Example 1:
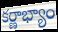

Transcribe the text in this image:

కర్ణాభ్యాం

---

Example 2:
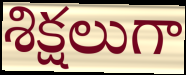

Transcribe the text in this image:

శిక్షలుగా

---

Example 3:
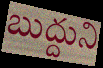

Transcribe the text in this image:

బుద్దుని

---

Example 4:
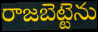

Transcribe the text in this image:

రాజబెట్టెను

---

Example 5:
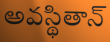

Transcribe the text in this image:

అవస్థితాన్